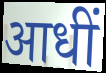
आधीं